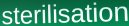
sterilisation